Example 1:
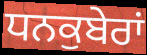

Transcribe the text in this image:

ਧਨਕੁਬੇਰਾਂ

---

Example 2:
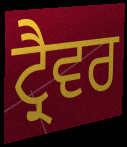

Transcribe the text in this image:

ਟ੍ਰੈਵਰ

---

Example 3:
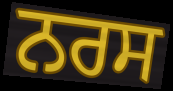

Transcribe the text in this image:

ਨਰਸ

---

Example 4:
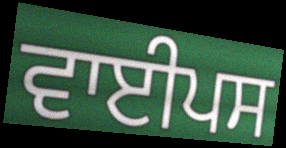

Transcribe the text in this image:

ਵਾਈਪਸ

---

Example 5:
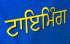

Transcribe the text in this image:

ਟਾਇਮਿੰਗ